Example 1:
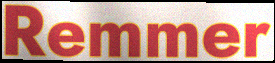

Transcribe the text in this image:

Remmer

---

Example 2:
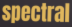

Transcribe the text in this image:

spectral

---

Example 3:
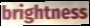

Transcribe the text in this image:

brightness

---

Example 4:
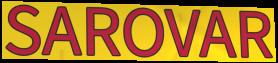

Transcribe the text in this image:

SAROVAR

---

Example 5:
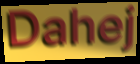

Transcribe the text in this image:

Dahej